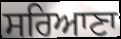
ਸਰਿਆਣਾ